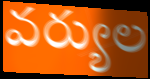
వర్యుల